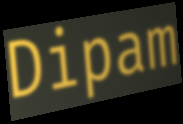
Dipam